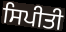
ਸਿਪੀਤੀ